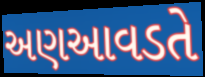
અણઆવડતે